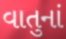
વાતુનાં